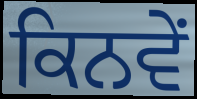
ਕਿਨਵੇਂ